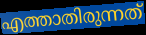
എത്താതിരുന്നത്